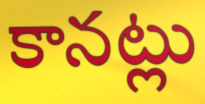
కానట్లు